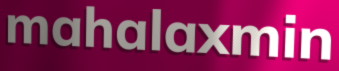
mahalaxmin